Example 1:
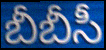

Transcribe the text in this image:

బీబీసీ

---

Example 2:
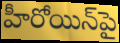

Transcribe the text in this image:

హీరోయిన్‌పై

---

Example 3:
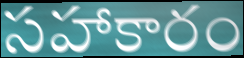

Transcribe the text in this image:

సహాకారం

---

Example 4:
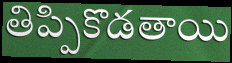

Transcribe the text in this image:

తిప్పికొడతాయి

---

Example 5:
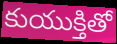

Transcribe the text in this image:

కుయుక్తితో